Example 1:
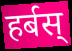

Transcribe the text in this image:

हर्बस्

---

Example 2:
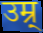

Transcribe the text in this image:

उम्र्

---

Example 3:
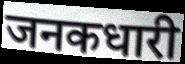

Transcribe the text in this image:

जनकधारी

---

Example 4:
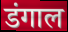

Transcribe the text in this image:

डंगाल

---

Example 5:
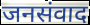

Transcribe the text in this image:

जनसंवाद